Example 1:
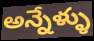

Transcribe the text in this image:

అన్నేళ్ళు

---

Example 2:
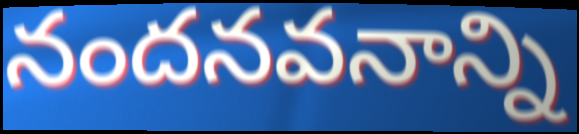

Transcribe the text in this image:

నందనవనాన్ని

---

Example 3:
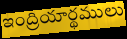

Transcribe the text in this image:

ఇంద్రియార్థములు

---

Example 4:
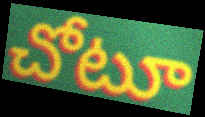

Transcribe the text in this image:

చోటూ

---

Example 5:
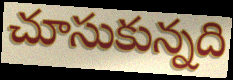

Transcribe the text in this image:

చూసుకున్నది